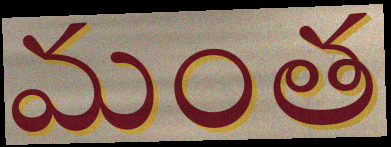
మంత